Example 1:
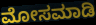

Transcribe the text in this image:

ಮೋಸಮಾಡಿ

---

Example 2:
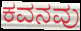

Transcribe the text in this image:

ಕವನವು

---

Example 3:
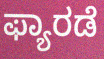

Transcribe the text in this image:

ಫ್ಯಾರಡೆ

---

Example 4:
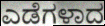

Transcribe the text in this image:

ಎಡೆಗಳಾದ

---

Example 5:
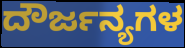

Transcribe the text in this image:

ದೌರ್ಜನ್ಯಗಳ